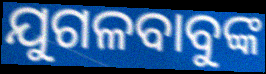
ଯୁଗଳବାବୁଙ୍କ